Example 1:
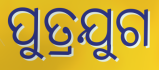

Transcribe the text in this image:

ପୁତ୍ରଯୁଗ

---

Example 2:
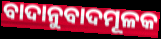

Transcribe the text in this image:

ବାଦାନୁବାଦମୂଳକ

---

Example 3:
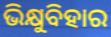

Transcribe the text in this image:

ଭିକ୍ଷୁବିହାର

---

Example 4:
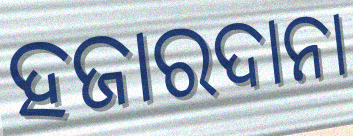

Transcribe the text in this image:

ହଜାରଦାନା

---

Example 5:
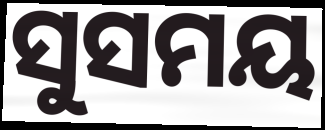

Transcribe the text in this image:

ସୁସମୟ